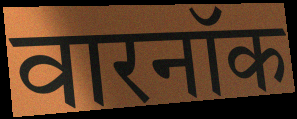
वारनॉक